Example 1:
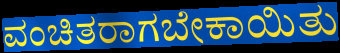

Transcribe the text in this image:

ವಂಚಿತರಾಗಬೇಕಾಯಿತು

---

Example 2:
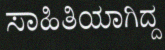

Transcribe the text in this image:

ಸಾಹಿತಿಯಾಗಿದ್ದ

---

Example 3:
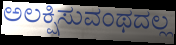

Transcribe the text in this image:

ಅಲಕ್ಷಿಸುವಂಥದಲ್ಲ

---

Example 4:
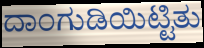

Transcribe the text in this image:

ದಾಂಗುಡಿಯಿಟ್ಟಿತು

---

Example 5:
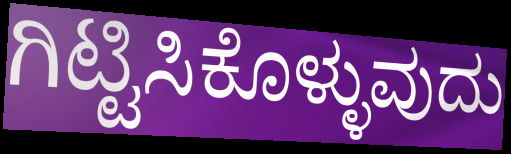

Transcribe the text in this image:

ಗಿಟ್ಟಿಸಿಕೊಳ್ಳುವುದು